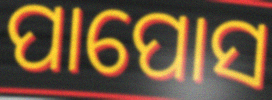
ପାପୋସ